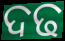
ଦଢ